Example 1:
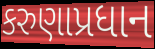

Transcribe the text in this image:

કરુણાપ્રધાન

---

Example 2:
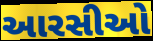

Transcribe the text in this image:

આરસીઓ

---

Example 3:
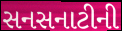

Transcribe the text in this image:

સનસનાટીની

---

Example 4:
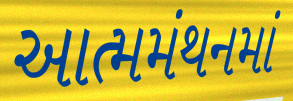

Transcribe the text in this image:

આત્મમંથનમાં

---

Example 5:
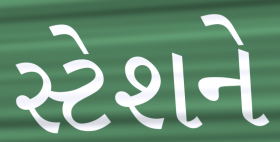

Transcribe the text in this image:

સ્ટેશને